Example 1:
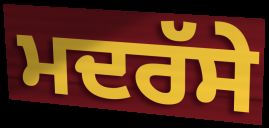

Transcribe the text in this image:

ਮਦਰੱਸੇ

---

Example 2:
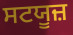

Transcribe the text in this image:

ਸਟਯੂਜ਼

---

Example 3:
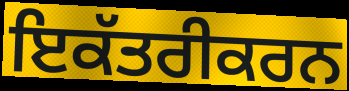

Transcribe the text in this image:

ਇਕੱਤਰੀਕਰਨ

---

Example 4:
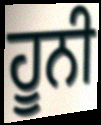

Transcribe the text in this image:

ਹੂਨੀ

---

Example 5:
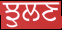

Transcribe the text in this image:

ਝੁਲਣ